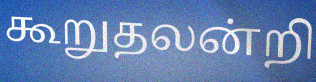
கூறுதலன்றி